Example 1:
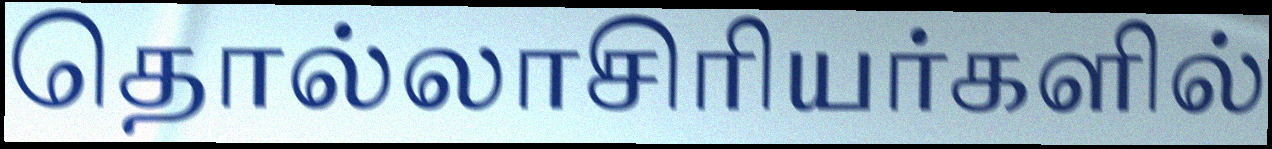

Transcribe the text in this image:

தொல்லாசிரியர்களில்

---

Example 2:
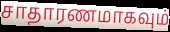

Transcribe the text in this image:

சாதாரணமாகவும்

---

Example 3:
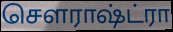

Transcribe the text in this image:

சௌராஷ்ட்ரா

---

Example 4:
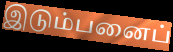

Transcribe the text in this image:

இடும்பனைப்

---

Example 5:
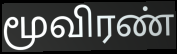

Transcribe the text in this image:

மூவிரண்